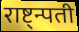
राष्ट्न्पती